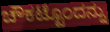
ಚೌಕಟ್ಟೊಂದನ್ನು